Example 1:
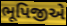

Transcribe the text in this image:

ભૂપિજીએ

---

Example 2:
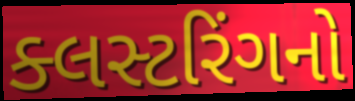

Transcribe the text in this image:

ક્લસ્ટરિંગનો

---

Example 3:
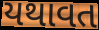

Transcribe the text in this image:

યથાવત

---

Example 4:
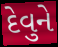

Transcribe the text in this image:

દેવુને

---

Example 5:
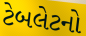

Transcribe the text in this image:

ટેબલેટનો